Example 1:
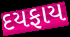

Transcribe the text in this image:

દયફાય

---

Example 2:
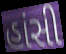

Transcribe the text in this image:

હાંસી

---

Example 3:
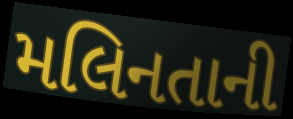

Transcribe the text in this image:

મલિનતાની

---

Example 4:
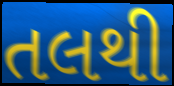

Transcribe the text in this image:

તલથી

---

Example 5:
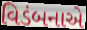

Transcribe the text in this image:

વિડંબનાએ